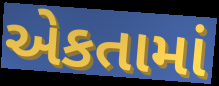
એકતામાં